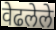
वेढलेले